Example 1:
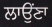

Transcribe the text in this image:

ਲਾਉਂਣਾ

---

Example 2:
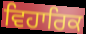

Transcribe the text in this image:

ਵਿਹਾਰਿਕ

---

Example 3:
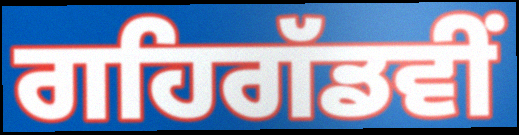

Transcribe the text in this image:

ਗਹਿਗੱਡਵੀਂ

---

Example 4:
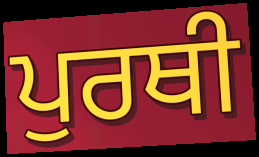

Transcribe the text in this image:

ਪੁਰਥੀ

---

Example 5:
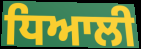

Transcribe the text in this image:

ਧਿਆਲੀ